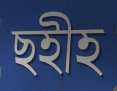
ছহীহ